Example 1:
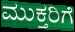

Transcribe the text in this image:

ಮುಕ್ತರಿಗೆ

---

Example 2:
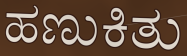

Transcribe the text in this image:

ಹಣುಕಿತು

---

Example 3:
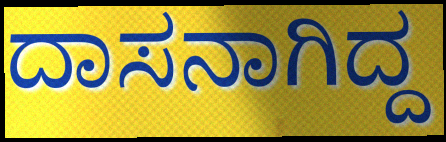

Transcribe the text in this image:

ದಾಸನಾಗಿದ್ದ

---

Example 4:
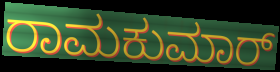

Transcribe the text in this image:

ರಾಮಕುಮಾರ್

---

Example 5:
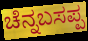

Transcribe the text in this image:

ಚೆನ್ನಬಸಪ್ಪ